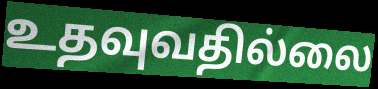
உதவுவதில்லை